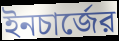
ইনচার্জের